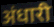
अंधारी